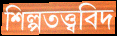
শিল্পতত্ত্ববিদ